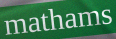
mathams